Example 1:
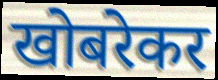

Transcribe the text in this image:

खोबरेकर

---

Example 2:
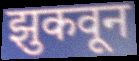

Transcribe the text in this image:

झुकवून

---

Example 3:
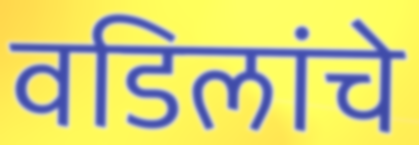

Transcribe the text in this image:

वडिलांचे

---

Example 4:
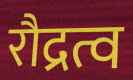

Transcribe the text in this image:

रौद्रत्व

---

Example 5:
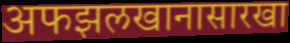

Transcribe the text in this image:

अफझलखानासारखा